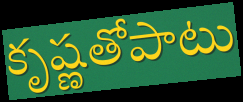
కృష్ణతోపాటు